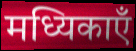
मध्यिकाएँ